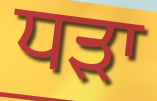
ਧੜਾ